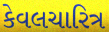
કેવલચારિત્ર